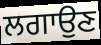
ਲਗਾਉਣ